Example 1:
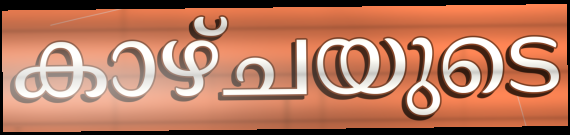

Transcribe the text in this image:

കാഴ്ചയുടെ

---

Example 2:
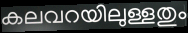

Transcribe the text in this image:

കലവറയിലുള്ളതും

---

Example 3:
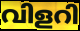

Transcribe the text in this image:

വിളറി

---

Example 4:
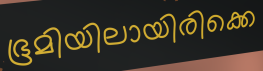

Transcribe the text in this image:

ഭൂമിയിലായിരിക്കെ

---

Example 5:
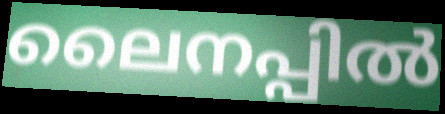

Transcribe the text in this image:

ലൈനപ്പിൽ